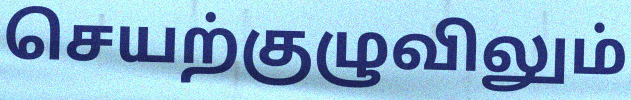
செயற்குழுவிலும்